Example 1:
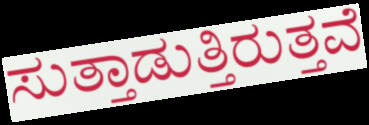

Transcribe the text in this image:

ಸುತ್ತಾಡುತ್ತಿರುತ್ತವೆ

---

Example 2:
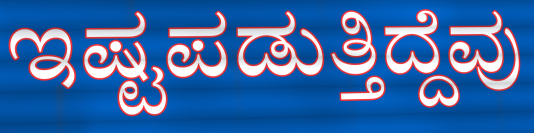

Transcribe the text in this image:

ಇಷ್ಟಪಡುತ್ತಿದ್ದೆವು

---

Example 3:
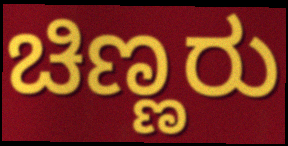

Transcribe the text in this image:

ಚಿಣ್ಣರು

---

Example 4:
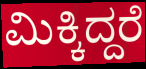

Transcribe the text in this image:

ಮಿಕ್ಕಿದ್ದರೆ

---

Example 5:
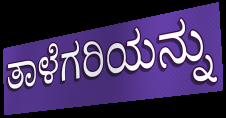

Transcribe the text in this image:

ತಾಳೆಗರಿಯನ್ನು